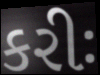
કરીઃ